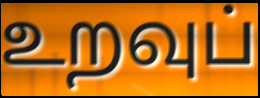
உறவுப்